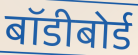
बॉडीबोर्ड